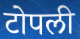
टोपली